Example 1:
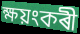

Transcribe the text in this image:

ক্ষয়ংকৰী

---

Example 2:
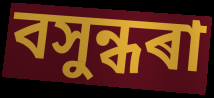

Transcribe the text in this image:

বসুন্ধৰা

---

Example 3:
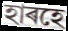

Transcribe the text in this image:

হাৰহে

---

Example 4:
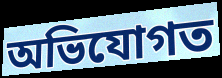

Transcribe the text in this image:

অভিযোগত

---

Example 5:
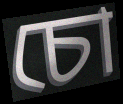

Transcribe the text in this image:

চো